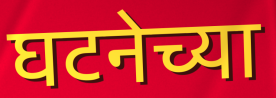
घटनेच्या